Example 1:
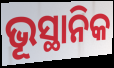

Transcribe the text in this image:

ଭୂସ୍ଥାନିକ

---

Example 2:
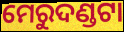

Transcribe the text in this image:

ମେରୁଦଣ୍ଡଟା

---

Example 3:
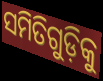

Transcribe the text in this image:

ସମିତିଗୁଡ଼ିକୁ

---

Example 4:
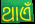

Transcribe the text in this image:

ଥାଏଁ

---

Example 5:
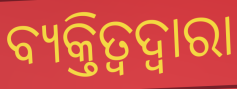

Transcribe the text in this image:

ବ୍ୟକ୍ତିତ୍ୱଦ୍ୱାରା